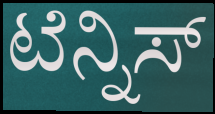
ಟೆನ್ನಿಸ್